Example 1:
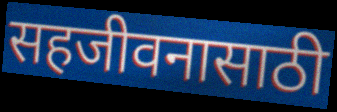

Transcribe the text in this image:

सहजीवनासाठी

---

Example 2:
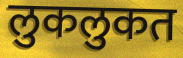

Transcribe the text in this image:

लुकलुकत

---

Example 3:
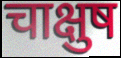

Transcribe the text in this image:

चाक्षुष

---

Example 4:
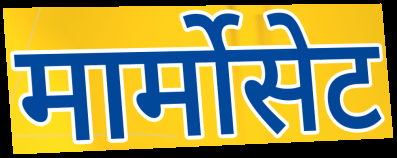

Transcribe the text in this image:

मार्मोसेट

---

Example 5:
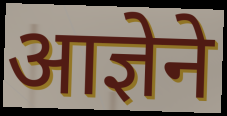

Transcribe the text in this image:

आज्ञेने